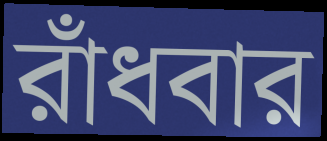
রাঁধবার